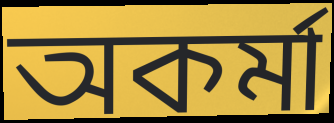
অকর্মা